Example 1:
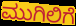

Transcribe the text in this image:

ಮುಗಿಲಿಗೆ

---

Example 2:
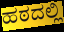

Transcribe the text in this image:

ಹಠದಲ್ಲಿ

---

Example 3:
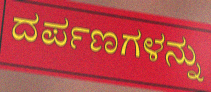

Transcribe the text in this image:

ದರ್ಪಣಗಳನ್ನು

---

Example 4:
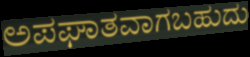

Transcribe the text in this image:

ಅಪಘಾತವಾಗಬಹುದು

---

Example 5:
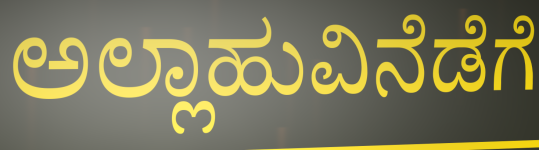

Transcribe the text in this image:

ಅಲ್ಲಾಹುವಿನೆಡೆಗೆ